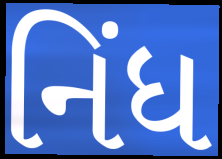
નિંધ